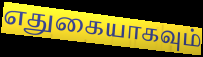
எதுகையாகவும்